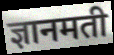
ज्ञानमती